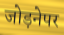
जोड़नेपर